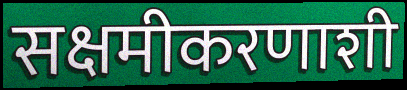
सक्षमीकरणाशी